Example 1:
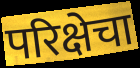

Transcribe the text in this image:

परिक्षेचा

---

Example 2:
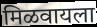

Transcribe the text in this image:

मिळवायला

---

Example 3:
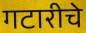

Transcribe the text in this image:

गटारीचे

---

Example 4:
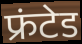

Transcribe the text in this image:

फ्रंटेड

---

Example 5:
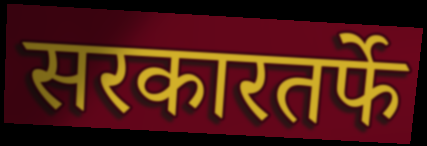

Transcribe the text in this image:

सरकारतर्फे